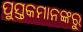
ପୁସ୍ତକମାନଙ୍କରୁ